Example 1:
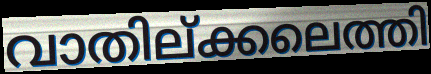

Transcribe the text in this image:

വാതില്ക്കലെത്തി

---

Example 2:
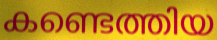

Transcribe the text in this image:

കണ്ടെത്തിയ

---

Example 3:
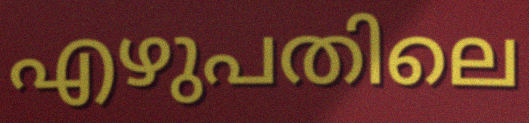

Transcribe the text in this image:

എഴുപതിലെ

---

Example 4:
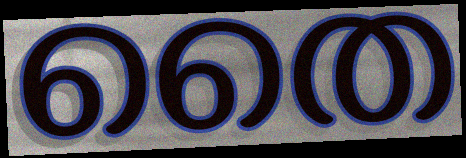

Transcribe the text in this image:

തൈ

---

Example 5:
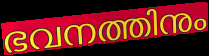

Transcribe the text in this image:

ഭവനത്തിനും